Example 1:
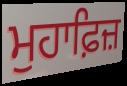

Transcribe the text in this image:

ਮੁਹਾਫ਼ਿਜ਼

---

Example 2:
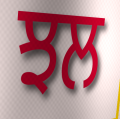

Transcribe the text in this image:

ਝਲ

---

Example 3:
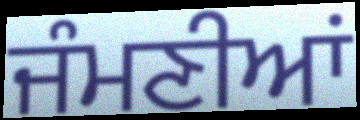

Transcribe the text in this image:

ਜੰਮਣੀਆਂ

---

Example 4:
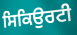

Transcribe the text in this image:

ਸਿਕਿਉਰਟੀ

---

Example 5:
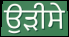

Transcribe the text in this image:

ਉੜੀਸੇ